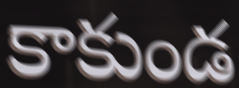
కాకుండ